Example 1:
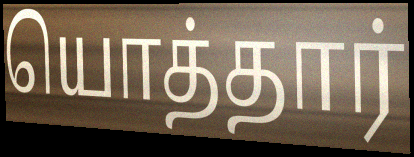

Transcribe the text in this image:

யொத்தார்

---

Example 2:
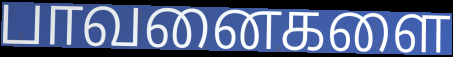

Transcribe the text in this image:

பாவனைகளை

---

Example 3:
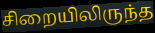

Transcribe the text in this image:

சிறையிலிருந்த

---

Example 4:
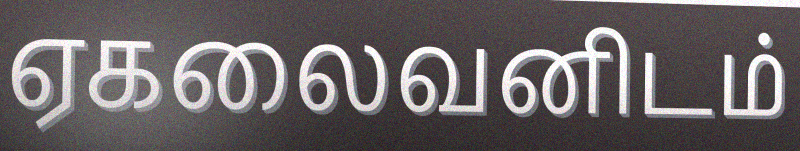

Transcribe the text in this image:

ஏகலைவனிடம்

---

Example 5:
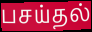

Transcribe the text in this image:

பசய்தல்